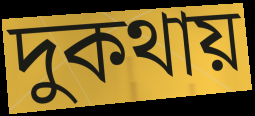
দুকথায়